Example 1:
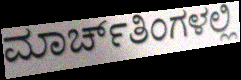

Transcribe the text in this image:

ಮಾರ್ಚ್‌ತಿಂಗಳಲ್ಲಿ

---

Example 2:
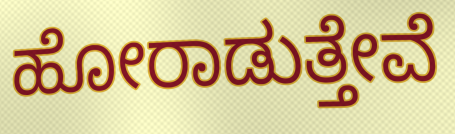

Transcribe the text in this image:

ಹೋರಾಡುತ್ತೇವೆ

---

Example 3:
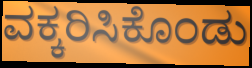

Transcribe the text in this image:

ವಕ್ಕರಿಸಿಕೊಂಡು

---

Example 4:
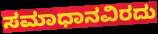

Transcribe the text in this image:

ಸಮಾಧಾನವಿರದು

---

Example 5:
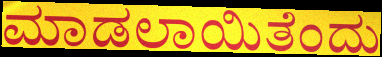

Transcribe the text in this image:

ಮಾಡಲಾಯಿತೆಂದು